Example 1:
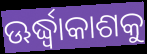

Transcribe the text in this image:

ଊର୍ଦ୍ଧ୍ୱାକାଶକୁ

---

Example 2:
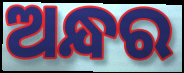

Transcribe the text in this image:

ଅନ୍ଧର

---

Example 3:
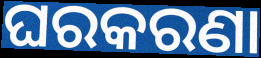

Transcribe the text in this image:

ଘରକରଣା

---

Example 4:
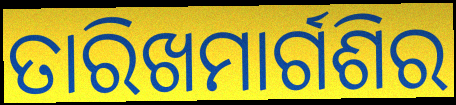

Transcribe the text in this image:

ତାରିଖମାର୍ଗଶିର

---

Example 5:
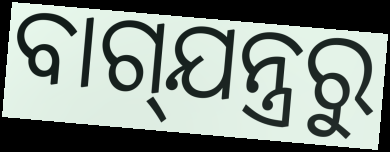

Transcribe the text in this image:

ବାଗ୍‌ଯନ୍ତ୍ରରୁ